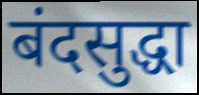
बंदसुद्धा